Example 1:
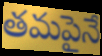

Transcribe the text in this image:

తమపైనే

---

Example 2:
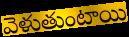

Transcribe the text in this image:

వెళుతుంటాయి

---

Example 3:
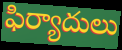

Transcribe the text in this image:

ఫిర్యాదులు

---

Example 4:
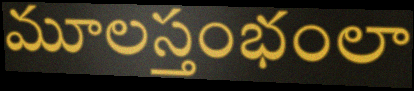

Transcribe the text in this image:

మూలస్తంభంలా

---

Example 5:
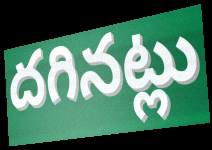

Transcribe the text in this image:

దగినట్లు